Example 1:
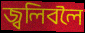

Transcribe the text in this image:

জ্বলিবলৈ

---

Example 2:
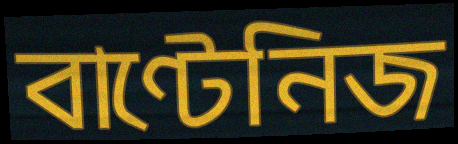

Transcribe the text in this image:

বাণ্টেনিজ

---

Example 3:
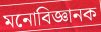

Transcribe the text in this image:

মনোবিজ্ঞানক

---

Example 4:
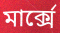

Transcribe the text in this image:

মাৰ্ক্সে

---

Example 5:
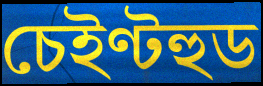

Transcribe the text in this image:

চেইণ্টহুড